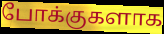
போக்குகளாக